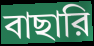
বাছারি